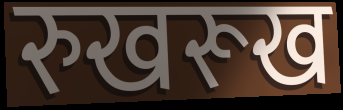
रुखरूख